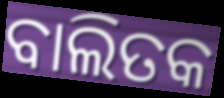
ବାଲିତକ